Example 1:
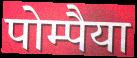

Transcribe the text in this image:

पोम्पैया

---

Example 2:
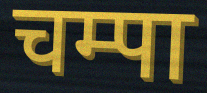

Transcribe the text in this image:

चम्पा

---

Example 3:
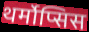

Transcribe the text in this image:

थर्मोप्सिस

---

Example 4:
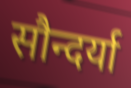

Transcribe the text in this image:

सौन्दर्या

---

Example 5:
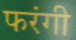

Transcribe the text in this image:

फरंगी